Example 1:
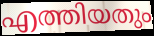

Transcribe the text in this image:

എത്തിയതും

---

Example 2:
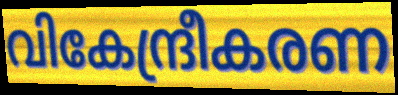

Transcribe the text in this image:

വികേന്ദ്രീകരണ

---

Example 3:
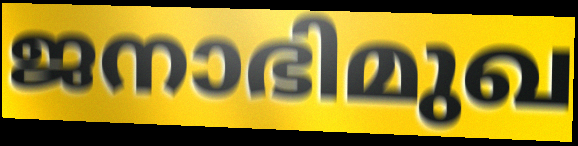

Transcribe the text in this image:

ജനാഭിമുഖ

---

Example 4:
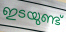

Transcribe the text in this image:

ഇടയുണ്ട്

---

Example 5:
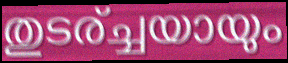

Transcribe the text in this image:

തുടര്ച്ചയായും